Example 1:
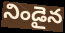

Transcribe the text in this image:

నిండైన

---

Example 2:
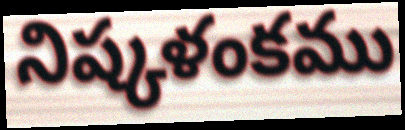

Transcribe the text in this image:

నిష్కళంకము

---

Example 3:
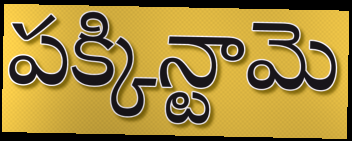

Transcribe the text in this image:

పక్కిన్టామె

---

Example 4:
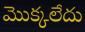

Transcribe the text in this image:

మొక్కలేదు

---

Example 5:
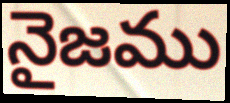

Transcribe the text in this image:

నైజము